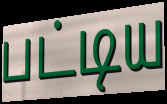
பட்டிய